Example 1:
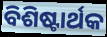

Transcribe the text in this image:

ବିଶିଷ୍ଟାର୍ଥକ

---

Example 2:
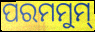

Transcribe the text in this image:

ପରମମୁମ୍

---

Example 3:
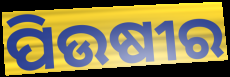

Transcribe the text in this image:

ପିଉଷୀର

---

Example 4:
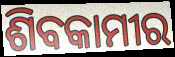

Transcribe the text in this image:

ଶିବକାମୀର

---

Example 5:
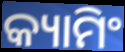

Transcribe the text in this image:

କ୍ୟାମିଂ